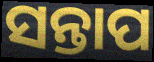
ସନ୍ତାପ